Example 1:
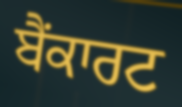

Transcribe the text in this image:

ਬੈਂਕਾਰਟ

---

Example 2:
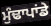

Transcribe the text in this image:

ਮੁੰਢਾਪਾਂਡੇ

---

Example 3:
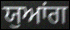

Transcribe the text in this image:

ਯੁਆਂਗ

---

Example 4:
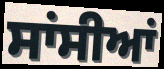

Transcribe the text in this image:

ਸਾਂਸੀਆਂ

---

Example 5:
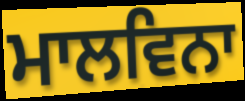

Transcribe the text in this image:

ਮਾਲਵਿਨਾ